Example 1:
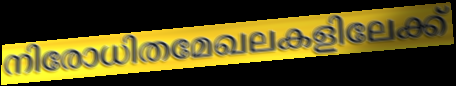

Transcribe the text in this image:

നിരോധിതമേഖലകളിലേക്ക്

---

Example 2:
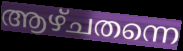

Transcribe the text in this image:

ആഴ്ചതന്നെ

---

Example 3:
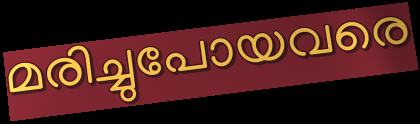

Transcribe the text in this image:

മരിച്ചുപോയവരെ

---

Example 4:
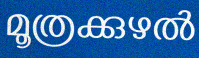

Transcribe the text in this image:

മൂത്രക്കുഴൽ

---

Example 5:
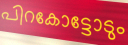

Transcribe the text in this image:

പിറകോട്ടോടും